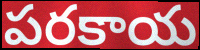
పరకాయ